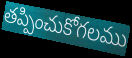
తప్పించుకోగలము